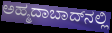
ಅಹ್ಮದಾಬಾದ್‍ನಲ್ಲಿ